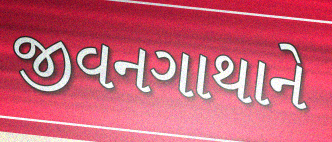
જીવનગાથાને